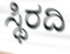
ಸ್ಥಿರದಿ